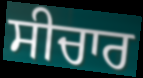
ਸੀਚਾਰ